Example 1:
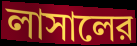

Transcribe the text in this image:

লাসালের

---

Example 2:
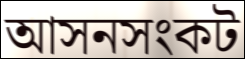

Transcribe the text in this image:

আসনসংকট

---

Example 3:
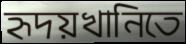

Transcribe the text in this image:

হৃদয়খানিতে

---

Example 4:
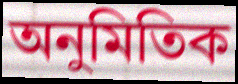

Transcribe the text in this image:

অনুমিতিক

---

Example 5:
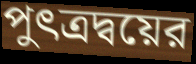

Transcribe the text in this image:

পুৎত্রদ্বয়ের